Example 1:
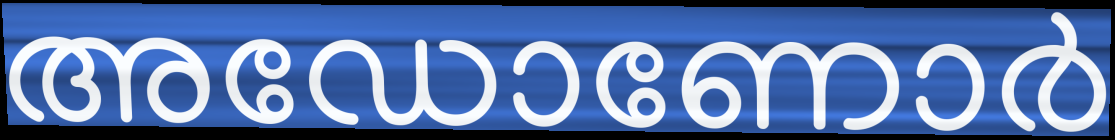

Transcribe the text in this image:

അഡോണോർ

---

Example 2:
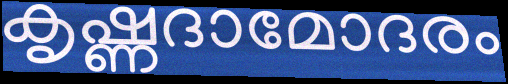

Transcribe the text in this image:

കൃഷ്ണദാമോദരം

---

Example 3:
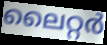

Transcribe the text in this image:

ലൈറ്റർ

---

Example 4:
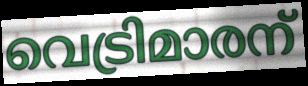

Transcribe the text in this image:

വെട്രിമാരന്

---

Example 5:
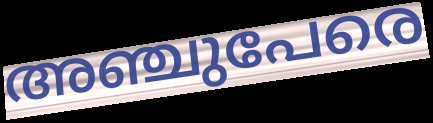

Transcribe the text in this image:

അഞ്ചുപേരെ